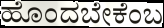
ಹೊಂದಬೇಕೆಂಬ